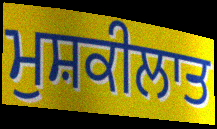
ਮੁਸ਼ਕੀਲਾਤ